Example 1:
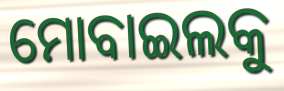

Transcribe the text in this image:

ମୋବାଇଲକୁ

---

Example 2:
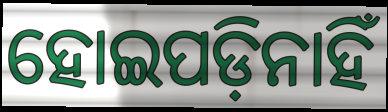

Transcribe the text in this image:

ହୋଇପଡ଼ିନାହିଁ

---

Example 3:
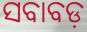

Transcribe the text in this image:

ସବାବଡ଼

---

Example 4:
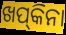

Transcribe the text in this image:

ଖପ୍‌କିନା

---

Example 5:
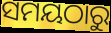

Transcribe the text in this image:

ସମୟଠାରୁ